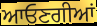
ਆਓਣਗੀਆਂ